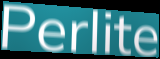
Perlite